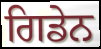
ਗਿਡੇਨ